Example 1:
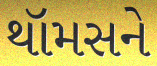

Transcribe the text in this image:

થૉમસને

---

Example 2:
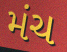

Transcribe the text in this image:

મંચ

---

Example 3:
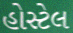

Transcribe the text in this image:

હોસ્ટેલ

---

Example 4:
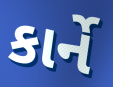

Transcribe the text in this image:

કાર્ને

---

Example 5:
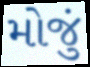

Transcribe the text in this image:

મોજું